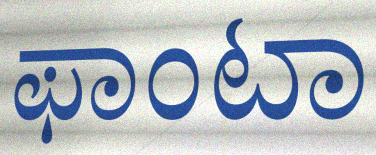
ಫಾಂಟಾ